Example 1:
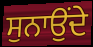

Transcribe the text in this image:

ਸੁਨਾਉਂਦੇ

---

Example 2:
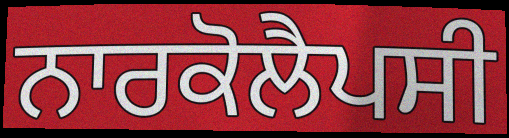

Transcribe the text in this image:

ਨਾਰਕੋਲੈਪਸੀ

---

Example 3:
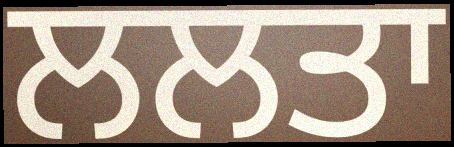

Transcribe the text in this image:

ਲਲਤਾ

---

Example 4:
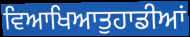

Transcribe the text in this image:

ਵਿਆਖਿਆਤੁਹਾਡੀਆਂ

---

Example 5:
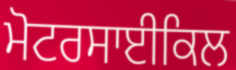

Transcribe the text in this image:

ਮੋਟਰਸਾਈਕਿਲ